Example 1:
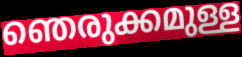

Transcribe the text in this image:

ഞെരുക്കമുള്ള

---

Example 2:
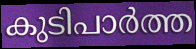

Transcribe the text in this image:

കുടിപാർത്ത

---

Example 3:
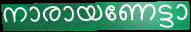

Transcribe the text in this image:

നാരായണേട്ടാ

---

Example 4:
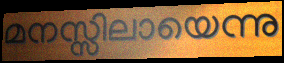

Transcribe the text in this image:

മനസ്സിലായെന്നു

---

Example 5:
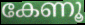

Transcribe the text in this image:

കേണൂ